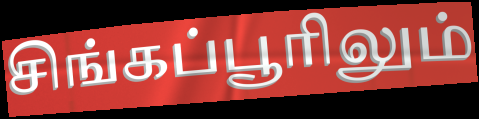
சிங்கப்பூரிலும்